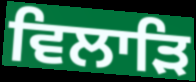
ਵਿਲਾੜਿ